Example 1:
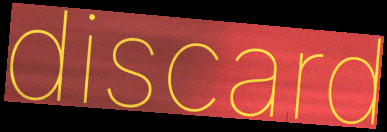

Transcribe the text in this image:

discard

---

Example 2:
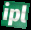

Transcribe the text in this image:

ipl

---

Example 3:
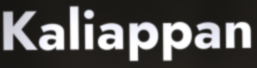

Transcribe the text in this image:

Kaliappan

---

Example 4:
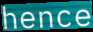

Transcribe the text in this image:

hence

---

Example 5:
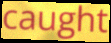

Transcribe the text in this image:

caught